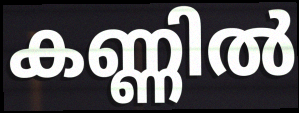
കണ്ണിൽ